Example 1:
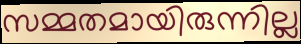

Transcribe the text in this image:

സമ്മതമായിരുന്നില്ല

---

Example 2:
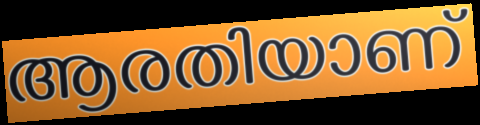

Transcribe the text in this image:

ആരതിയാണ്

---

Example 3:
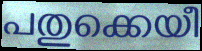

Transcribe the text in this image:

പതുക്കെയീ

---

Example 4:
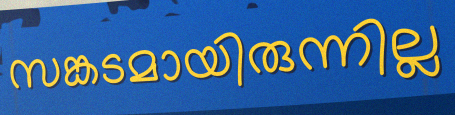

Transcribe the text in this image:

സങ്കടമായിരുന്നില്ല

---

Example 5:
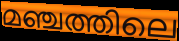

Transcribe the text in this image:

മഞ്ചത്തിലെ